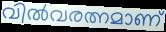
വിൽവരത്നമാണ്